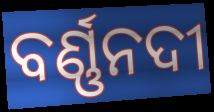
ବର୍ଣ୍ଣନଦୀ